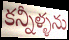
కన్నీళ్ళను